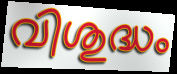
വിശുദ്ധം